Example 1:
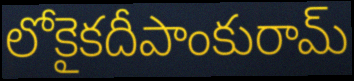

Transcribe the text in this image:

లోకైకదీపాంకురామ్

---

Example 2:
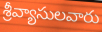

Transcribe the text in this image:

శ్రీవ్యాసులవారు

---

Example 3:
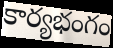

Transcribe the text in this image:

కార్యభంగం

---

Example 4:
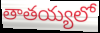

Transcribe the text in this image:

తాతయ్యలో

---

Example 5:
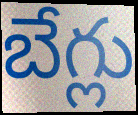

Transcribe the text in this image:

బేగ్లు